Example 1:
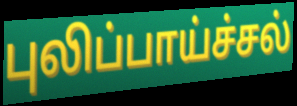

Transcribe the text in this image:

புலிப்பாய்ச்சல்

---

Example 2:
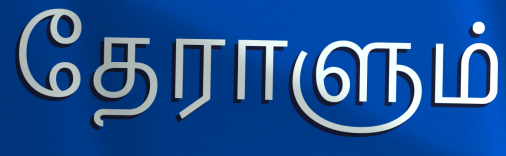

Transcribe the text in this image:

தேராளும்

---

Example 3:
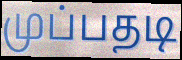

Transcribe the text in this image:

முப்பதடி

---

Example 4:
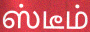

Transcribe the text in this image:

ஸ்டீம்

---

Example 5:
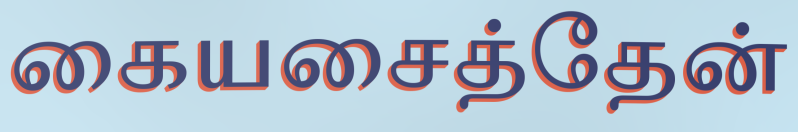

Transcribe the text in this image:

கையசைத்தேன்